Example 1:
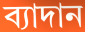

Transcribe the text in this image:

ব্যাদান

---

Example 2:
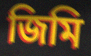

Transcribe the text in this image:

জিমি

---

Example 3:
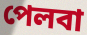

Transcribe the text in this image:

পেলবা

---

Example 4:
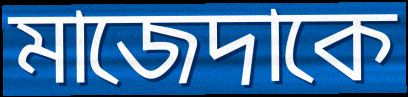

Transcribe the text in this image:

মাজেদাকে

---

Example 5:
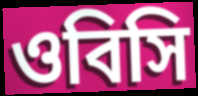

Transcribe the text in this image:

ওবিসি